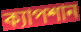
ক্যাপশান